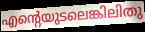
എന്റെയുടലെങ്കിലിതു